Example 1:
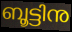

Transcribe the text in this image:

ബൂട്ടിനു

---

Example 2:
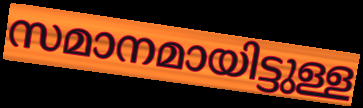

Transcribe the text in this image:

സമാനമായിട്ടുള്ള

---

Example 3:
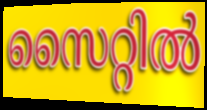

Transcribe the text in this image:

സൈറ്റിൽ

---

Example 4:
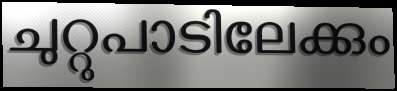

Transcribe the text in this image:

ചുറ്റുപാടിലേക്കും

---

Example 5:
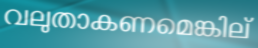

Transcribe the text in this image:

വലുതാകണമെങ്കില്